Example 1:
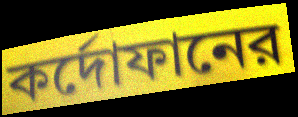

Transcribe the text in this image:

কর্দোফানের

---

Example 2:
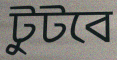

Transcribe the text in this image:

টুটবে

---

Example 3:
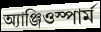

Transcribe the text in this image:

অ্যাঞ্জিওস্পার্ম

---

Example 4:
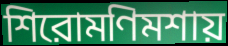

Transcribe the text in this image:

শিরোমণিমশায়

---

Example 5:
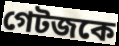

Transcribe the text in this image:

গেটজকে